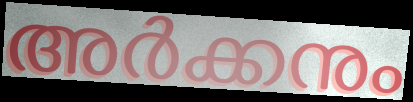
അർക്കനും